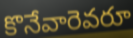
కొనేవారెవరూ